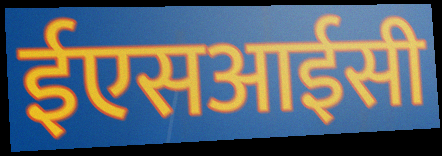
ईएसआईसी